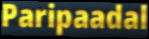
Paripaadal